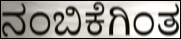
ನಂಬಿಕೆಗಿಂತ